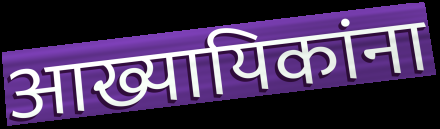
आख्यायिकांना